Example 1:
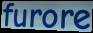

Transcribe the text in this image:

furore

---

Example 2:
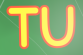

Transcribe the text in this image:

TU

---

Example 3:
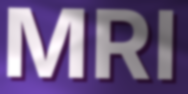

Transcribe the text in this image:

MRI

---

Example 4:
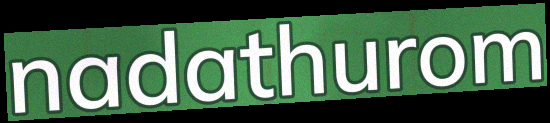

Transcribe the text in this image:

nadathurom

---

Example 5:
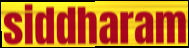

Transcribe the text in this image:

siddharam